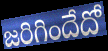
జరిగిందేదో